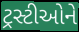
ટ્રસ્ટીઓને